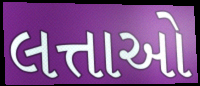
લત્તાઓ